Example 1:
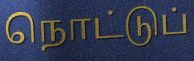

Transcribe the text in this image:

நொட்டுப்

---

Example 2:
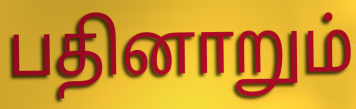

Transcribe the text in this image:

பதினாறும்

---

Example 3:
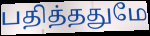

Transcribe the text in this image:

பதித்ததுமே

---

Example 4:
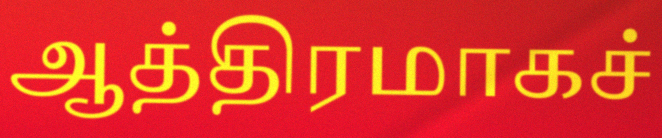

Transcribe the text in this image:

ஆத்திரமாகச்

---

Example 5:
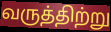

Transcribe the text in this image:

வருத்திற்று